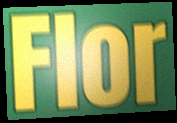
Flor